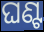
ଘଣ୍ଟ